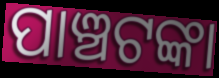
ପାଞ୍ଚଟଙ୍କା